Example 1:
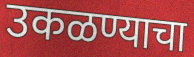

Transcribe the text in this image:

उकळण्याचा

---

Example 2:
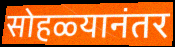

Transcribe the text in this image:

सोहळ्यानंतर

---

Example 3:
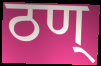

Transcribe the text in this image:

ठण्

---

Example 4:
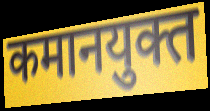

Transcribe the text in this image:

कमानयुक्त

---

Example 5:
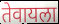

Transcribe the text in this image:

तेवायला